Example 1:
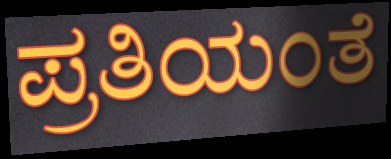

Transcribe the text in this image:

ಪ್ರತಿಯಂತೆ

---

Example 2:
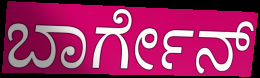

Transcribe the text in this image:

ಬಾರ್ಗೇನ್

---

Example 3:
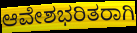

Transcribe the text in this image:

ಆವೇಶಭರಿತರಾಗಿ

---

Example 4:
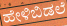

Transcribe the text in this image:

ಹೇಳಿಬಿಡಲೆ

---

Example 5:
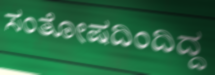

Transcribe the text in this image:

ಸಂತೋಷದಿಂದಿದ್ದ